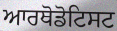
ਆਰਥੋਡੋਟਿਸਟ